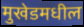
मुखेडमधील